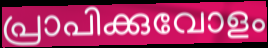
പ്രാപിക്കുവോളം